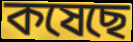
কষেছে